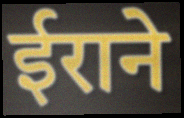
ईराने